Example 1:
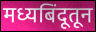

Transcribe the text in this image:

मध्यबिंदूतून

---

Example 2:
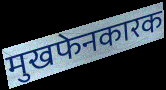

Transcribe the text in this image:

मुखफेनकारक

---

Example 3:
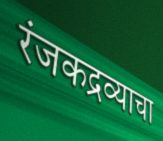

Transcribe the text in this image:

रंजकद्रव्याचा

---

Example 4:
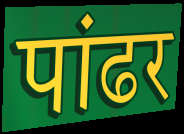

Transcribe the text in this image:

पांढर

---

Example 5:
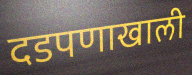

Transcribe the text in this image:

दडपणाखाली